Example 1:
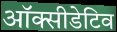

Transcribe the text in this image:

ऑक्सीडेटिव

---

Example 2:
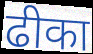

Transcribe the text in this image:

ढीका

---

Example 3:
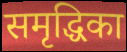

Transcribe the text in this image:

समृद्धिका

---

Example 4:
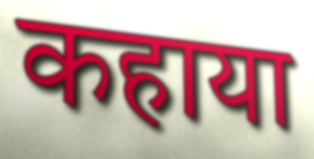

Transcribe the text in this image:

कहाया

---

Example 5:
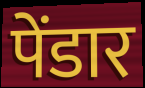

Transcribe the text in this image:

पेंडार